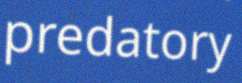
predatory